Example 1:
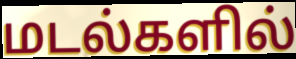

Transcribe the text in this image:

மடல்களில்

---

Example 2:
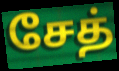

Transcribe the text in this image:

சேத்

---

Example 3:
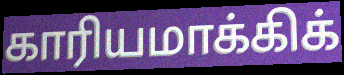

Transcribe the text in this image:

காரியமாக்கிக்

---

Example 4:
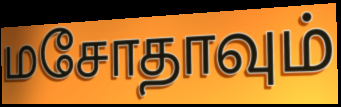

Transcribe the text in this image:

மசோதாவும்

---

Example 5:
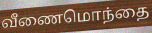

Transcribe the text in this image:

வீணைமொந்தை